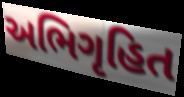
અભિગૃહિત